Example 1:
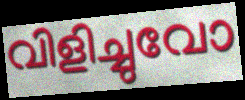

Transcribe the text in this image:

വിളിച്ചുവോ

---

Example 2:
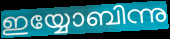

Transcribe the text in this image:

ഇയ്യോബിന്നു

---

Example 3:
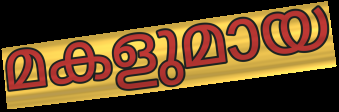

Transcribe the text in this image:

മകളുമായ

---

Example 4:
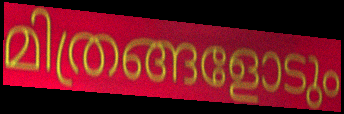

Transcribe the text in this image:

മിത്രങ്ങളോടും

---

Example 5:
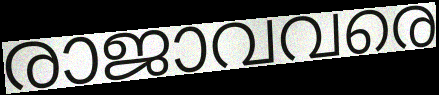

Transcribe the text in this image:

രാജാവവരെ